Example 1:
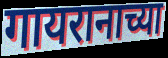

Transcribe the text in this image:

गायरानाच्या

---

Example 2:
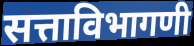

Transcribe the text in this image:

सत्ताविभागणी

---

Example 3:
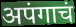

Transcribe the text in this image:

अपंगाचं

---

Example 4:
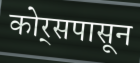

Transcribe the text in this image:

कोर्सपासून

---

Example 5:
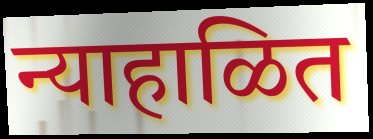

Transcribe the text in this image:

न्याहाळित